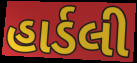
હાર્ડલી